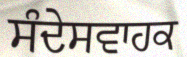
ਸੰਦੇਸਵਾਹਕ